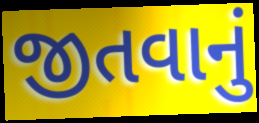
જીતવાનું